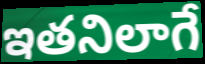
ఇతనిలాగే